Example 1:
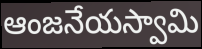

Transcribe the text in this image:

ఆంజనేయస్వామి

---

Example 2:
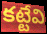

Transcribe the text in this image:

కట్టేవి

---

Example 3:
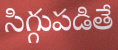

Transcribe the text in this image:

సిగ్గుపడితే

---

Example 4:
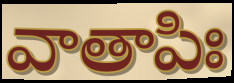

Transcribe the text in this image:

వాతాపిః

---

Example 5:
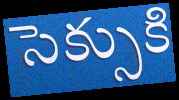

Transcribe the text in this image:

సెక్సుకి